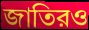
জাতিরও